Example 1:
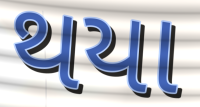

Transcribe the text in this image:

થયા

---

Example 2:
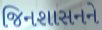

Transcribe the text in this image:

જિનશાસનને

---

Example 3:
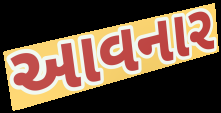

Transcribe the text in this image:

આવનાર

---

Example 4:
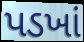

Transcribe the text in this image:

પડખાં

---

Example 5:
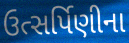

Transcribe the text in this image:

ઉત્સર્પિણીના